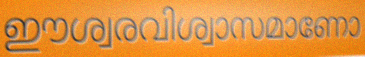
ഈശ്വരവിശ്വാസമാണോ